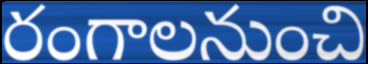
రంగాలనుంచి